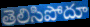
తెలిసిపోదూ